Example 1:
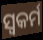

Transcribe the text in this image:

ସ୍ଵକର୍ମ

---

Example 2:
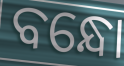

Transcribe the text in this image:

ବନ୍ଧୋ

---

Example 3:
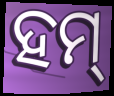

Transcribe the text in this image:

ହମ୍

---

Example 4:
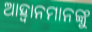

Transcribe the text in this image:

ଆହ୍ୱାନମାନଙ୍କୁ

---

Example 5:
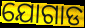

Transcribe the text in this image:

ଯୋଗାଡ